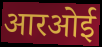
आरओई